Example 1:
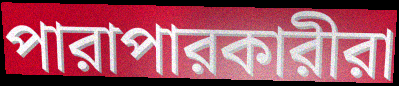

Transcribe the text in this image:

পারাপারকারীরা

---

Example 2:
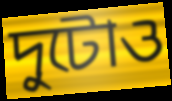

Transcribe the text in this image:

দুটোও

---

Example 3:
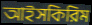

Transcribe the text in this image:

আইসকিরিম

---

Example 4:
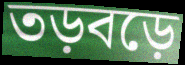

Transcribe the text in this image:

তড়বড়ে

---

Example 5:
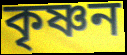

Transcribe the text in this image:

কৃষ্ণন